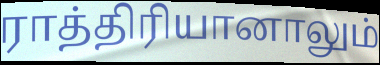
ராத்திரியானாலும்